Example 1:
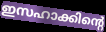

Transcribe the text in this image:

ഇസഹാക്കിന്റെ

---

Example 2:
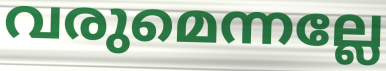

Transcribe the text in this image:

വരുമെന്നല്ലേ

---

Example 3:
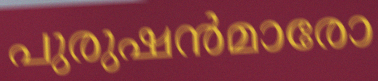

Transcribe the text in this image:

പുരുഷൻമാരോ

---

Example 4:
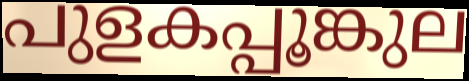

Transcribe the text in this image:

പുളകപ്പൂങ്കുല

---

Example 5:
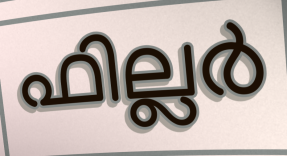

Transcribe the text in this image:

ഫില്ലർ